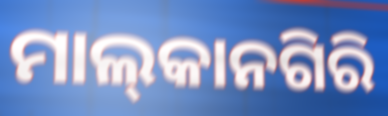
ମାଲ୍‌କାନଗିରି